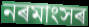
নৰমাংসৰ